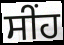
ਸੀਂਹ